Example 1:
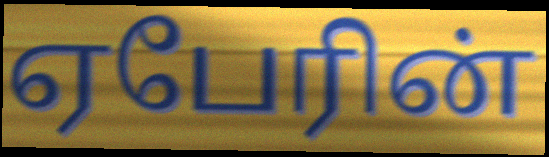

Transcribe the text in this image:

ஏபேரின்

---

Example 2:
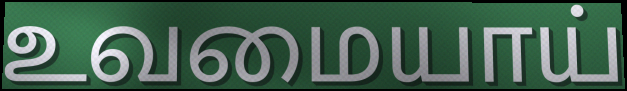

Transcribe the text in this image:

உவமையாய்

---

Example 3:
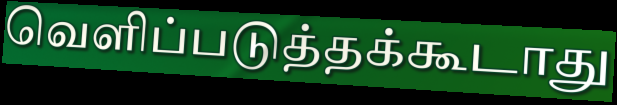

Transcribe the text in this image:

வெளிப்படுத்தக்கூடாது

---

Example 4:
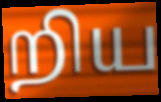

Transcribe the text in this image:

றிய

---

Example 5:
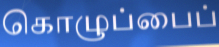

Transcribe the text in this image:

கொழுப்பைப்